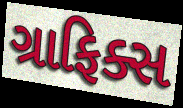
ગ્રાફિક્સ